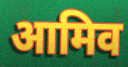
आमिव